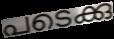
പടെക്കു